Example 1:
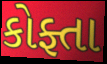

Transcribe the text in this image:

કોફ્તા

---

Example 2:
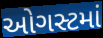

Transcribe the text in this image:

ઓગસ્ટમાં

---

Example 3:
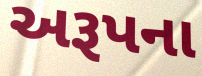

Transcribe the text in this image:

અરૂપના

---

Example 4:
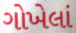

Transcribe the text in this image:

ગોખેલાં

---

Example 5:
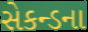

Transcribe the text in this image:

સેકન્ડના